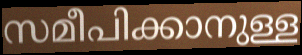
സമീപിക്കാനുള്ള